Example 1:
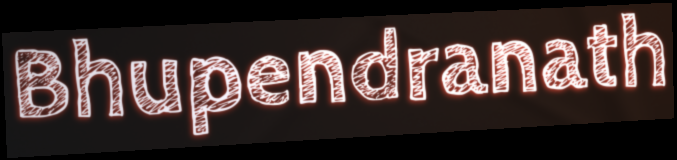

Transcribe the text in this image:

Bhupendranath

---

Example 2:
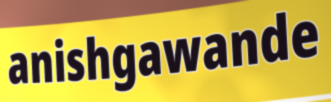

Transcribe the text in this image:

anishgawande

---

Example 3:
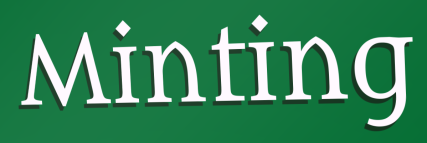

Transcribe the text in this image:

Minting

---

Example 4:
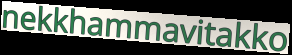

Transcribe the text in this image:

nekkhammavitakko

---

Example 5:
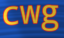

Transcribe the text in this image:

cwg